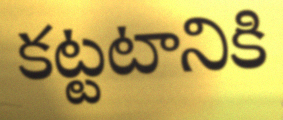
కట్టటానికి